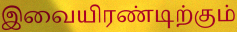
இவையிரண்டிற்கும்